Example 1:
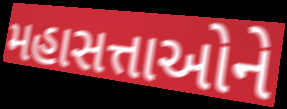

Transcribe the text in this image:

મહાસત્તાઓને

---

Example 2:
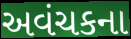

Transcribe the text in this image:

અવંચકના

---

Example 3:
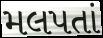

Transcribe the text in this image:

મલપતાં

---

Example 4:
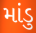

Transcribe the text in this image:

માંડુ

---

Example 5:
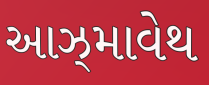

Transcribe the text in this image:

આઝ્માવેથ